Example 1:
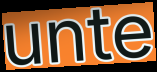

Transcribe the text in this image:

unte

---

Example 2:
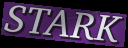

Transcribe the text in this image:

STARK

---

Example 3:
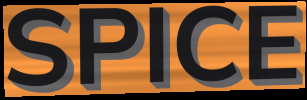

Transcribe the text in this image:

SPICE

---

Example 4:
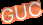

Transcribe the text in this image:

GUC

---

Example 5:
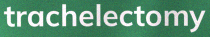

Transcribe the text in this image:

trachelectomy